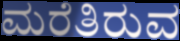
ಮರೆತಿರುವ